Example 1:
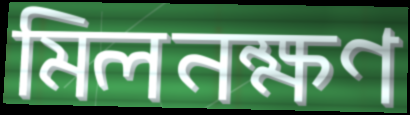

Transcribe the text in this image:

মিলনক্ষণ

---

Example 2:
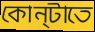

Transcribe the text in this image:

কোন্‌টাতে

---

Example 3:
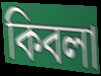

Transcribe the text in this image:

কিবলা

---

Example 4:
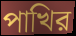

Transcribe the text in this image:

পাখির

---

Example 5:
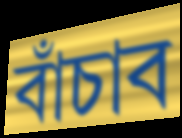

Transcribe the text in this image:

বাঁচাব